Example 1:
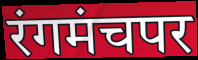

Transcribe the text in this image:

रंगमंचपर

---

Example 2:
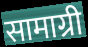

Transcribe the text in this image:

सामाग्री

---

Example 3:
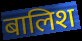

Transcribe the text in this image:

बालिश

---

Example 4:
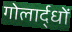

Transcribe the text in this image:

गोलार्द्धों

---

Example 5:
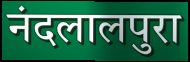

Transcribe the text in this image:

नंदलालपुरा